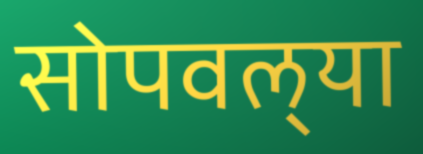
सोपवल्या